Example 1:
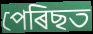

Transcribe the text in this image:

পেৰিছত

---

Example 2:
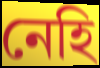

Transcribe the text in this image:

নেহি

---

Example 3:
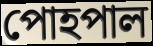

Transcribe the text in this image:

পোহপাল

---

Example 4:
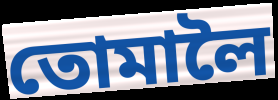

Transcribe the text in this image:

তোমালৈ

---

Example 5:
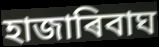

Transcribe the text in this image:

হাজাৰিবাঘ